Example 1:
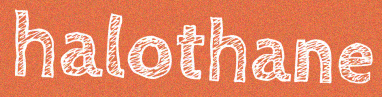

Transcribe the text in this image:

halothane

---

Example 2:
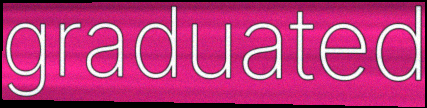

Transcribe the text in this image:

graduated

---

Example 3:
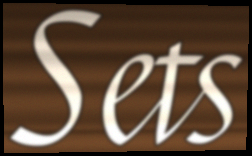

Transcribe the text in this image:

Sets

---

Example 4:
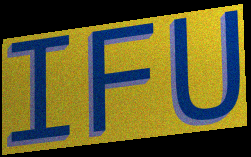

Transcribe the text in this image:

IFU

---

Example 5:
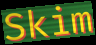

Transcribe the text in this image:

Skim